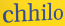
chhilo